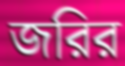
জরির